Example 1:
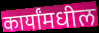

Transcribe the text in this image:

कार्यांमधील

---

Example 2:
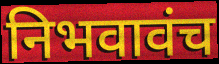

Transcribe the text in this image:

निभवावंच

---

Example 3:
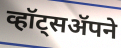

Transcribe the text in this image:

व्हॉट्सॲपने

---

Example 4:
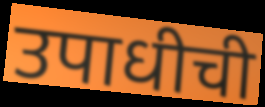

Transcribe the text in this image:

उपाधीची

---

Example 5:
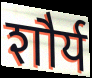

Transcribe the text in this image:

शौर्य